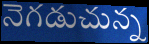
నెగడుచున్న